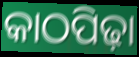
କାଠପିଢ଼ା